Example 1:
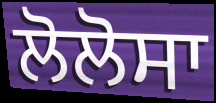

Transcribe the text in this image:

ਲੋਲੋਸਾ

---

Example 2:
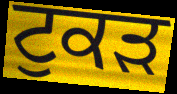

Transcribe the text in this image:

ਟੁਕੜ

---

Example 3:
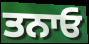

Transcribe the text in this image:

ਤਨਾਓ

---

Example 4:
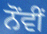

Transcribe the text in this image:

ਨੋਂਵੀਂ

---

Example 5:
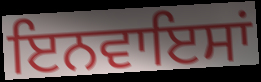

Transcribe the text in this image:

ਇਨਵਾਇਸਾਂ